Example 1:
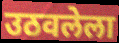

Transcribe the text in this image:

उठवलेला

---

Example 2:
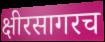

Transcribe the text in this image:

क्षीरसागरच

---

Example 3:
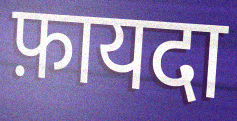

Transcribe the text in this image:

फ़ायदा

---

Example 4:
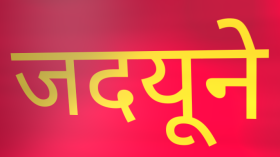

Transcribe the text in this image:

जदयूने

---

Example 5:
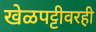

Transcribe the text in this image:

खेळपट्टीवरही